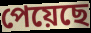
পেয়েছে